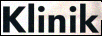
Klinik